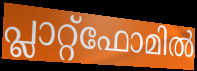
പ്ലാറ്റ്ഫോമിൽ